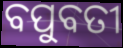
ବପୁବତୀ